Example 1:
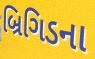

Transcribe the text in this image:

બ્રિગિડના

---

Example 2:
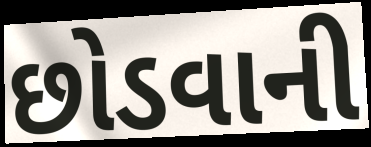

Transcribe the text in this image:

છોડવાની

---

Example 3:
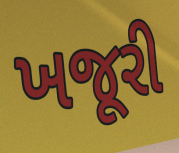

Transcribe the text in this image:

ખજૂરી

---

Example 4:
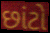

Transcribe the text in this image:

છાંટો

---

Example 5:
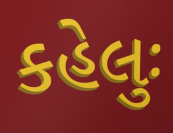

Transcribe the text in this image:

કહેલુઃ